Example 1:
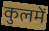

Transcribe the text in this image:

कुलमें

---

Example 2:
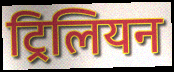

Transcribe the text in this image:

ट्रिलियन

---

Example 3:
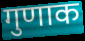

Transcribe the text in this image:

गुणाक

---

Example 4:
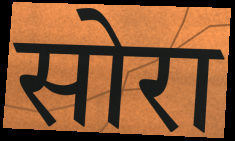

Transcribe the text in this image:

सोरा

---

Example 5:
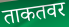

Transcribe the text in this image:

ताकतवर